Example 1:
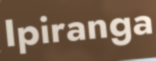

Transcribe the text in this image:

Ipiranga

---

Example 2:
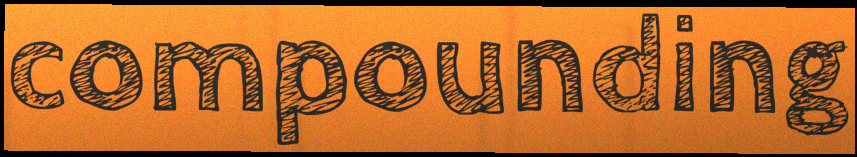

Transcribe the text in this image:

compounding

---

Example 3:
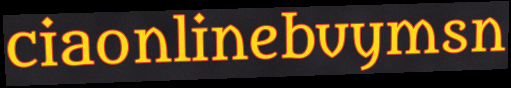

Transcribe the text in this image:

ciaonlinebuymsn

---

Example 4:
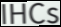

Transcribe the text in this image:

IHCs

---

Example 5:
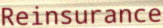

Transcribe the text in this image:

Reinsurance